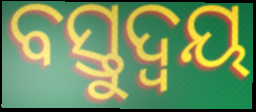
ବସ୍ତୁଦ୍ୱୟ